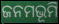
ଜନମଭୂମି